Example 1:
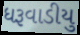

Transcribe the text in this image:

ધરૂવાડીયુ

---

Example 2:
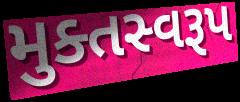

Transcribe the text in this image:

મુક્તસ્વરૂપ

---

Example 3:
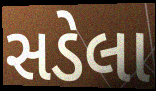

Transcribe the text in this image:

સડેલા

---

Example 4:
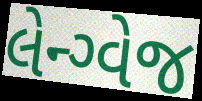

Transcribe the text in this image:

લેન્ગ્વેજ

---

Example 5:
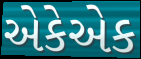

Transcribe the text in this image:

એકેએક